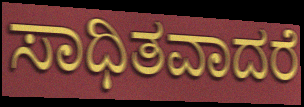
ಸಾಧಿತವಾದರೆ